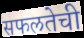
सफलतेची